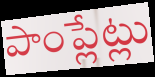
పాంప్లేట్లు